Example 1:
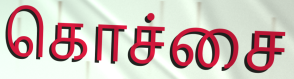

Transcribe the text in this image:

கொச்சை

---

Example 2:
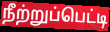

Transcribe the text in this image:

நீற்றுப்பெட்டி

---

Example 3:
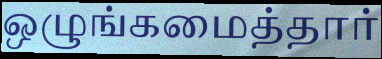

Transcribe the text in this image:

ஒழுங்கமைத்தார்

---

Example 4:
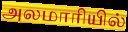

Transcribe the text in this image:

அலமாரியில்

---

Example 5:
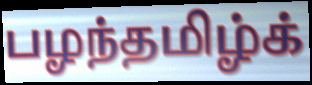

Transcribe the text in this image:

பழந்தமிழ்க்